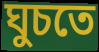
ঘুচতে